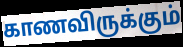
காணவிருக்கும்